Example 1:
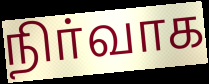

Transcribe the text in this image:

நிர்வாக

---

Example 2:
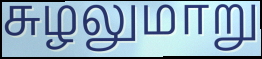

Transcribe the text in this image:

சுழலுமாறு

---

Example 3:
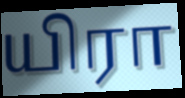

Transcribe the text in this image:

யிரா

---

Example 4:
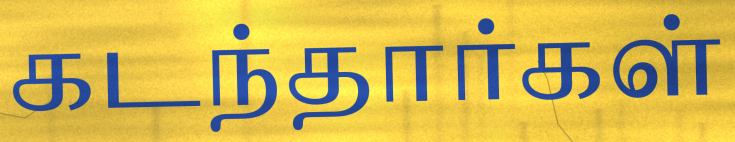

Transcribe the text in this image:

கடந்தார்கள்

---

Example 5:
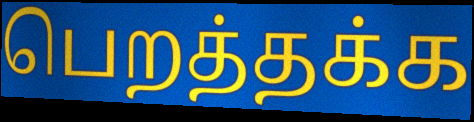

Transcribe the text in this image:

பெறத்தக்க